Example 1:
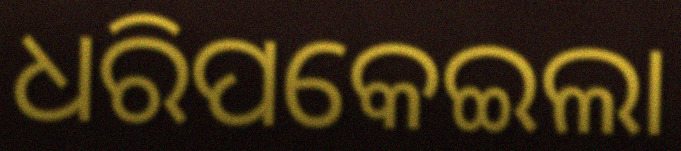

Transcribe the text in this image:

ଧରିପକେଇଲା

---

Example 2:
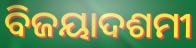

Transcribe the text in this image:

ବିଜୟାଦଶମୀ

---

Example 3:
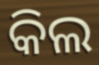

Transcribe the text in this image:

କିଲ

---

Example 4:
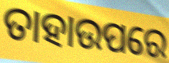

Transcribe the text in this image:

ତାହାଉପରେ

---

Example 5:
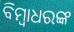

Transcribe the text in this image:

ବିମ୍ବାଧରଙ୍କ